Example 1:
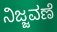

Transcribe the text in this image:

ನಿಜ್ಜವಣೆ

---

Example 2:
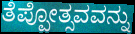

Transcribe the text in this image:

ತೆಪ್ಪೋತ್ಸವವನ್ನು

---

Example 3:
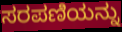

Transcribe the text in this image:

ಸರಪಣಿಯನ್ನು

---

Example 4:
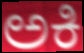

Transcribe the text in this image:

ಅಕಿ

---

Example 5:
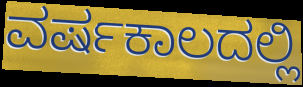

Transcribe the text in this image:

ವರ್ಷಕಾಲದಲ್ಲಿ